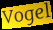
Vogel